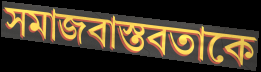
সমাজবাস্তবতাকে